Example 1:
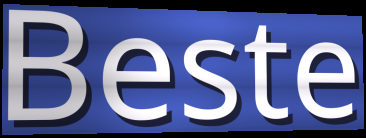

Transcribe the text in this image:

Beste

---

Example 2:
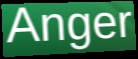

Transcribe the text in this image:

Anger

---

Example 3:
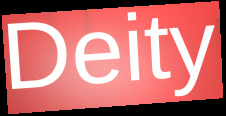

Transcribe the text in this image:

Deity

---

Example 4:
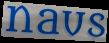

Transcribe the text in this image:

naus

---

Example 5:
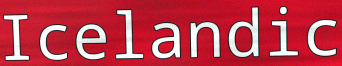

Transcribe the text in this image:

Icelandic